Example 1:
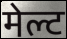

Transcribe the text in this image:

मेल्ट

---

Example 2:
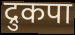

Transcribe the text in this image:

द्रुकपा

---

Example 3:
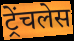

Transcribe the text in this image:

ट्रेंचलेस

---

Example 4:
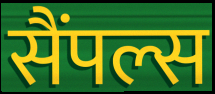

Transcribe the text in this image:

सैंपल्‍स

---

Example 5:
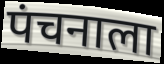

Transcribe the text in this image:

पंचनाला